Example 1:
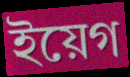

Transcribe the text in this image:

ইয়েগ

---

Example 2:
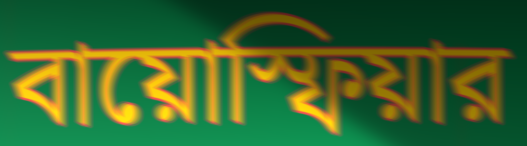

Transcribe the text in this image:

বায়োস্ফিয়ার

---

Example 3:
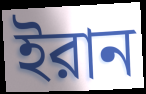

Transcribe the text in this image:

ইরান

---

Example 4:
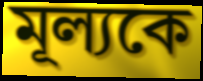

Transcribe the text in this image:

মূল্যকে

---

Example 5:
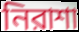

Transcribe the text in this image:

নিরাশা